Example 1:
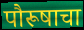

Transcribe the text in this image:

पौरूषाचा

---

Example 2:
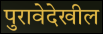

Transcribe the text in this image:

पुरावेदेखील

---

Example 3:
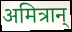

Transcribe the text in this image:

अमित्रान्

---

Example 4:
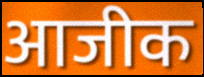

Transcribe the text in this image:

आजीक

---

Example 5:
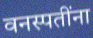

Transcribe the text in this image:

वनस्‍पतींना